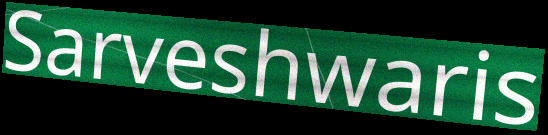
Sarveshwaris